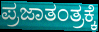
ಪ್ರಜಾತಂತ್ರಕ್ಕೆ